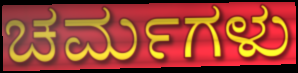
ಚರ್ಮಗಳು